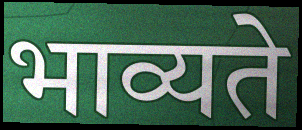
भाव्यते